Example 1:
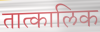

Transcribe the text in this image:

तात्कालिक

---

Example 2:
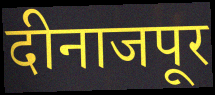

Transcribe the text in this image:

दीनाजपूर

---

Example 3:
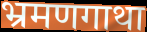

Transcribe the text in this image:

भ्रमणगाथा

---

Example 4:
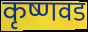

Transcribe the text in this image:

कृष्णवड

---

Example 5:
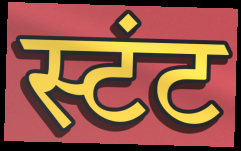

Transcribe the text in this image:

स्टंट